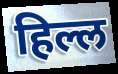
हिल्ल